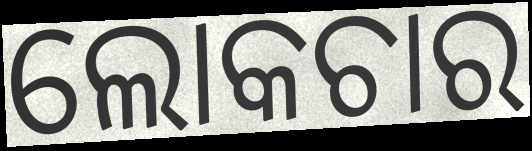
ଲୋକଚାର